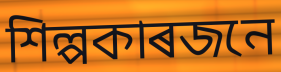
শিল্পকাৰজনে